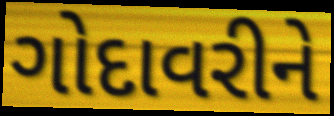
ગોદાવરીને